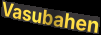
Vasubahen